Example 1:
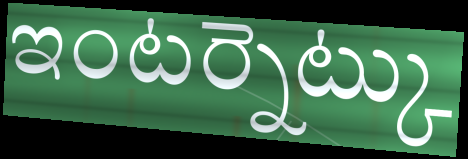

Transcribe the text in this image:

ఇంటర్నెట్కు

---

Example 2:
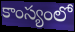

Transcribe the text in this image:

కాంస్యంలో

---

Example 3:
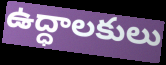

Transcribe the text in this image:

ఉద్ధాలకులు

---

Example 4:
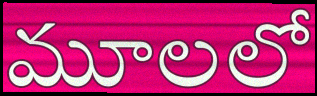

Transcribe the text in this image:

మూలలో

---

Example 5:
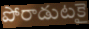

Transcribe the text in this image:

పోరాడుటకై